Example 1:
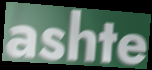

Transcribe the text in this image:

ashte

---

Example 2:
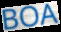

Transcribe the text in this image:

BOA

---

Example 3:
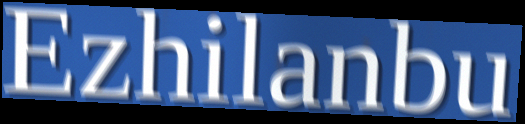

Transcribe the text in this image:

Ezhilanbu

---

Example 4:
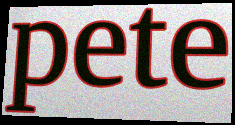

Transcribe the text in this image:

pete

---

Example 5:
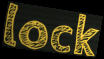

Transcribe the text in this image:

lock